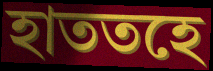
হাততহে